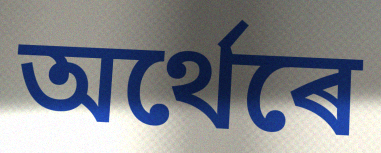
অৰ্থেৰে